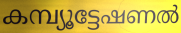
കമ്പ്യൂട്ടേഷണൽ